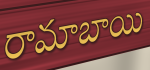
రామాబాయి